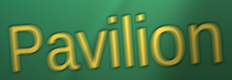
Pavilion